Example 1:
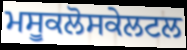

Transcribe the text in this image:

ਮਸੂਕਲੋਸਕੇਲਟਲ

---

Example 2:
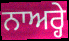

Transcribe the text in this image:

ਨਾਅਰ੍ਹੇ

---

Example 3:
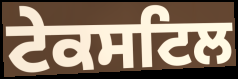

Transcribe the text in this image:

ਟੇਕਸਟਿਲ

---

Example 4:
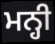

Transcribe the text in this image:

ਮਨ੍ਹੀ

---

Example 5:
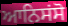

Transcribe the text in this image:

ਆਨਿਸਂਸੋ